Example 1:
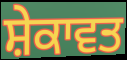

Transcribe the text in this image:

ਸ਼ੇਕਾਵਤ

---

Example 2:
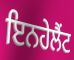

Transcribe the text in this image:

ਇਨਹੇਲੈਂਟ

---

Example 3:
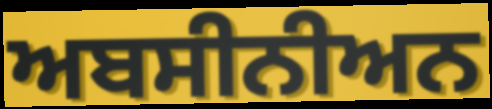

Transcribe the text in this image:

ਅਬਸੀਨੀਅਨ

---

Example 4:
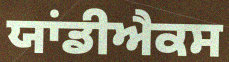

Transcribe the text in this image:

ਯਾਂਡੀਐਕਸ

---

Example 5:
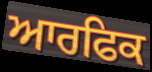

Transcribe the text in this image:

ਆਰਫਿਕ